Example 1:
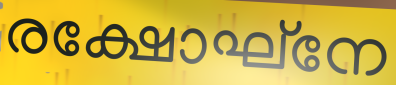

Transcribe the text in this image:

രക്ഷോഘ്നേ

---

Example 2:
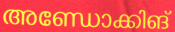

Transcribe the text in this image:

അണ്ഡോക്കിങ്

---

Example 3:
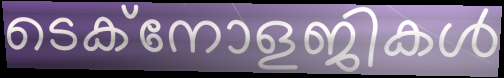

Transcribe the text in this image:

ടെക്നോളജികൾ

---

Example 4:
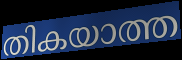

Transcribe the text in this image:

തികയാത്ത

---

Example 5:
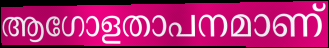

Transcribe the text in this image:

ആഗോളതാപനമാണ്